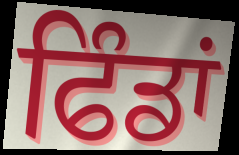
ਫਿੰਡਾਂ